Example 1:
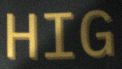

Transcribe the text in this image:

HIG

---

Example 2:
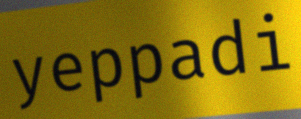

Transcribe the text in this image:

yeppadi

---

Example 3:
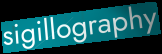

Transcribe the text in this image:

sigillography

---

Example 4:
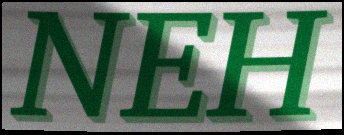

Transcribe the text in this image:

NEH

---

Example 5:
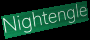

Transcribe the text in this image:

Nightengle